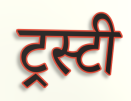
ट्रस्टी